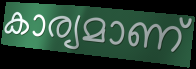
കാര്യമാണ്